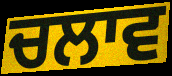
ਚਲਾਵ